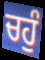
ਚਹੁੰ